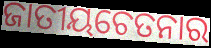
ଜାତୀୟଚେତନାର